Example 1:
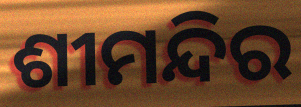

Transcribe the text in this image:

ଶୀମନ୍ଦିର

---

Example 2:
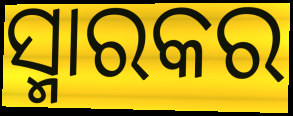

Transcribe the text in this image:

ସ୍ମାରକର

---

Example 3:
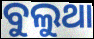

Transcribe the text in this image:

ବୁଲୁଥା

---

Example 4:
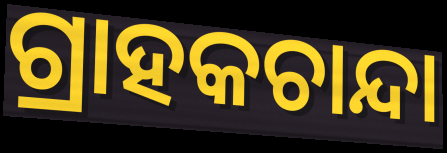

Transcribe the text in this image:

ଗ୍ରାହକଚାନ୍ଦା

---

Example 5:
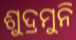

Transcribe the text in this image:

ଶୁଦ୍ରମୁନି